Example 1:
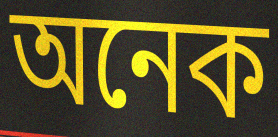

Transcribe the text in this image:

অনেক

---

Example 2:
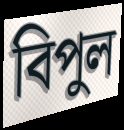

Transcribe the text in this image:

বিপুল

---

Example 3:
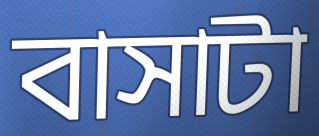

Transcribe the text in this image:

বাসাটা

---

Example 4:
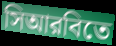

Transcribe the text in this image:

সিআরবিতে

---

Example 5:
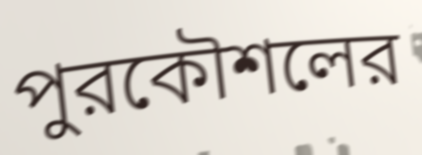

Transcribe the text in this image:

পুরকৌশলের